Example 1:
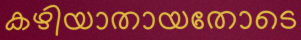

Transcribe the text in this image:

കഴിയാതായതോടെ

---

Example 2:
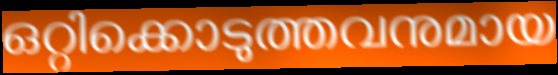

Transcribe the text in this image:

ഒറ്റിക്കൊടുത്തവനുമായ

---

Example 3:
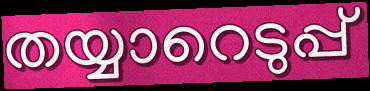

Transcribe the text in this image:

തയ്യാറെടുപ്പ്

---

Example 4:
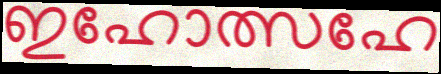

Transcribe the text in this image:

ഇഹോത്സഹേ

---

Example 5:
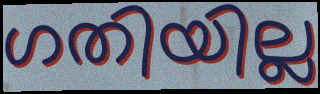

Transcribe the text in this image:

ഗതിയില്ല